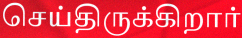
செய்திருக்கிறார்